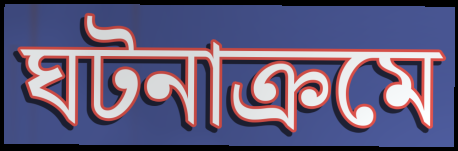
ঘটনাক্ৰমে